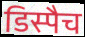
डिस्पैच